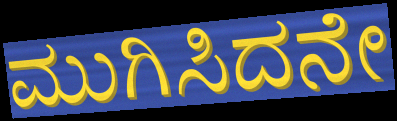
ಮುಗಿಸಿದನೇ